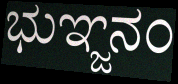
ಭುಞ್ಜನಂ